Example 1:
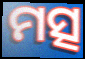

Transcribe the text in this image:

ମତ୍ସ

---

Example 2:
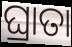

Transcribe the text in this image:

ଘ୍ରାତା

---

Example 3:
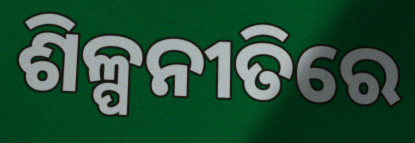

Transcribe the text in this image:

ଶିଳ୍ପନୀତିରେ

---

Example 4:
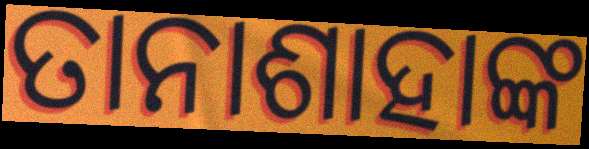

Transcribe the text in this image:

ତାନାଶାହାଙ୍କ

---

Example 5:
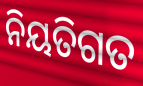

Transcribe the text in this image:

ନିୟତିଗତ